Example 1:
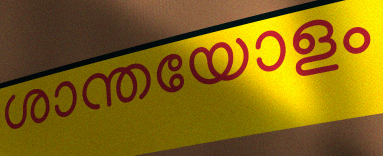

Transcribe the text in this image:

ശാന്തയോളം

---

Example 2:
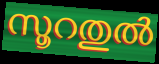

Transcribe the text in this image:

സൂറതുൽ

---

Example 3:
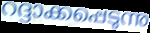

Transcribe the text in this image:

റദ്ദാക്കപ്പെടുന്നു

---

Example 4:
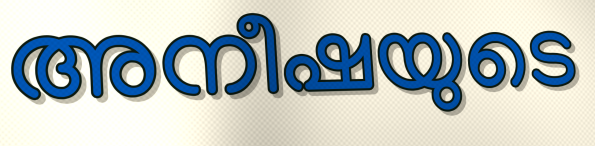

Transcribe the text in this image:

അനീഷയുടെ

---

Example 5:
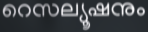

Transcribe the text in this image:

റെസല്യൂഷനും